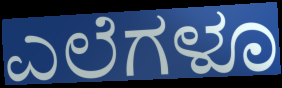
ಎಲೆಗಳೂ